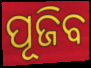
ପୂଜିବ